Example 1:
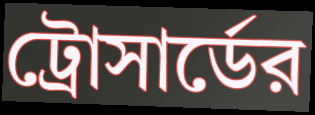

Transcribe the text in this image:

ট্রোসার্ডের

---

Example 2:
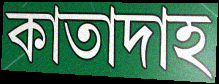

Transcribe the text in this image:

কাতাদাহ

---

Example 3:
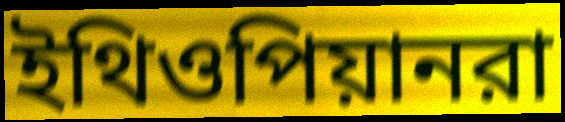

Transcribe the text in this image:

ইথিওপিয়ানরা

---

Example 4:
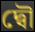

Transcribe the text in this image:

দ্বৌ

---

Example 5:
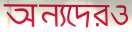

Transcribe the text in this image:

অন্যদেরও